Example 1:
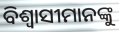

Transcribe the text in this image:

ବିଶ୍ୱାସୀମାନଙ୍କୁ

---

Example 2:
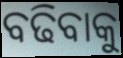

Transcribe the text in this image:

ବଢିବାକୁ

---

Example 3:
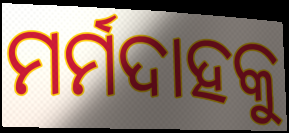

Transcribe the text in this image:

ମର୍ମଦାହକୁ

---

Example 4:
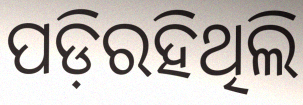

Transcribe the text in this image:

ପଡ଼ିରହିଥିଲି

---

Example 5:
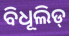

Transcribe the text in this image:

ବିଧୂଲିଡ୍